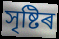
সৃষ্টিৰ